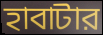
হাবাটার